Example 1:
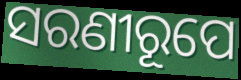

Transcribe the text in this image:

ସରଣୀରୂପେ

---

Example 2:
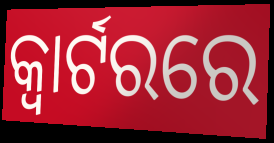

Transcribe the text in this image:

କ୍ବାର୍ଟରରେ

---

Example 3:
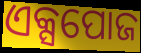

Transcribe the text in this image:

ଏକ୍ସପୋଜ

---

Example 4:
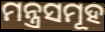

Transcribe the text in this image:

ମନ୍ତ୍ରସମୂହ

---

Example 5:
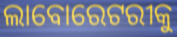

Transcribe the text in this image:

ଲାବୋରେଟରୀକୁ